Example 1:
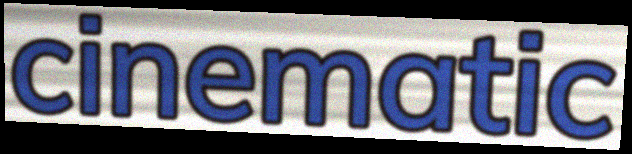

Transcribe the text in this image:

cinematic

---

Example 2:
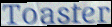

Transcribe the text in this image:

Toaster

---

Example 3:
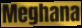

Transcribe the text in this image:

Meghana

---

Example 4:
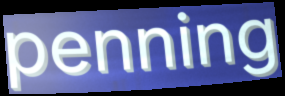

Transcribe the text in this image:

penning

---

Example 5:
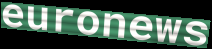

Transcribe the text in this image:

euronews